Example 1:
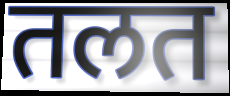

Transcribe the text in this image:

तलत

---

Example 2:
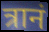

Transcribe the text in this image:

त्रानं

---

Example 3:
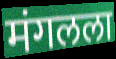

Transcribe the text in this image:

मंगलला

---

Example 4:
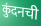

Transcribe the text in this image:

कुंदनची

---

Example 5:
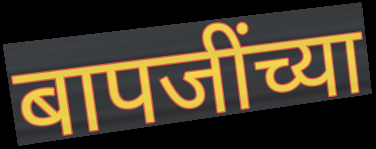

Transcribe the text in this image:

बापजींच्या